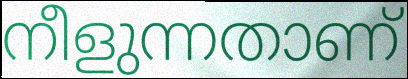
നീളുന്നതാണ്